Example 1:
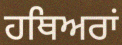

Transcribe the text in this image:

ਹਥਿਅਰਾਂ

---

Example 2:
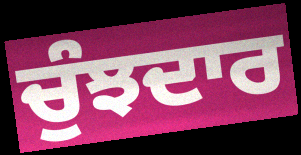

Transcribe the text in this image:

ਚੁੰਝਦਾਰ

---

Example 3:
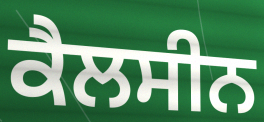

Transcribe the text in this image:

ਕੈਲਸੀਨ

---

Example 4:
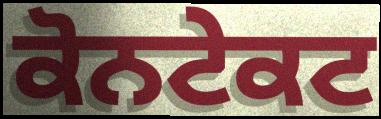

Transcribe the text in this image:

ਕੋਨਟੇਕਟ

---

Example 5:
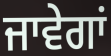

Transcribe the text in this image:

ਜਾਵੇਗਾਂ